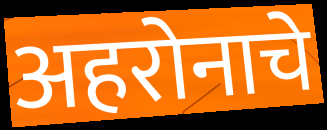
अहरोनाचे